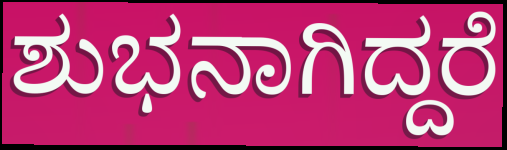
ಶುಭನಾಗಿದ್ದರೆ